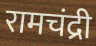
रामचंद्री